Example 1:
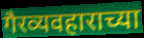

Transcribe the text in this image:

गैरव्यवहाराच्या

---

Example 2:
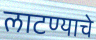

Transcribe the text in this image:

लाटण्याचे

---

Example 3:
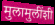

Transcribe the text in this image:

मुलामुलींशी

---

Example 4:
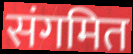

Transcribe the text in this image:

संगमित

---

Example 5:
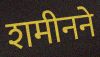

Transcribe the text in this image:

शमीनने